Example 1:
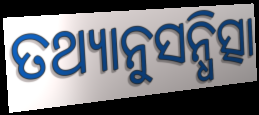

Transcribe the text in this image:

ତଥ୍ୟାନୁସନ୍ଧିତ୍ସା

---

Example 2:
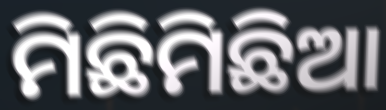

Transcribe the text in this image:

ମିଛିମିଛିଆ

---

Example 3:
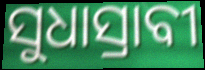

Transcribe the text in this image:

ସୁଧାସ୍ରାବୀ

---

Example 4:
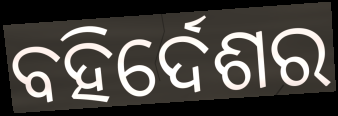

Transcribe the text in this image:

ବହିର୍ଦେଶର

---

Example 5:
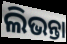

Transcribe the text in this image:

ଲିଭନ୍ତା